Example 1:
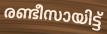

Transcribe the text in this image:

രണ്ടീസായിട്ട്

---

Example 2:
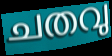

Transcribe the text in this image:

ചതവു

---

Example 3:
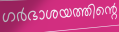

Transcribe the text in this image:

ഗർഭാശയത്തിന്റെ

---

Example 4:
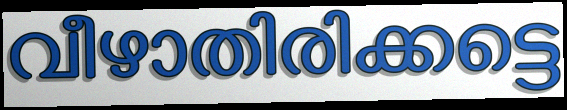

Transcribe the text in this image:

വീഴാതിരിക്കട്ടെ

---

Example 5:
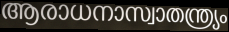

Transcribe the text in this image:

ആരാധനാസ്വാതന്ത്ര്യം